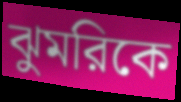
ঝুমরিকে